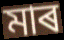
মাৰ